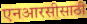
एनआरसीसाठी